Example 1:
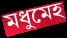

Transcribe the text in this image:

মধুমেহ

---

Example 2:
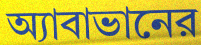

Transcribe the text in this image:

অ্যাবাভানের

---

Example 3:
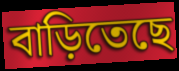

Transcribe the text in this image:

বাড়িতেছে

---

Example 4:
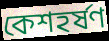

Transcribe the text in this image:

কেশহর্ষণ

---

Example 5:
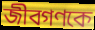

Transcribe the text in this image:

জীবগণকে